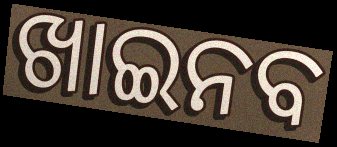
ଖାଇନବ